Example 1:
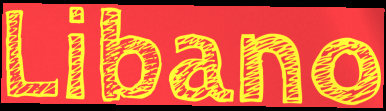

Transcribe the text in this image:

Libano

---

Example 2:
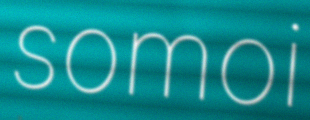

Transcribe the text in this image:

somoi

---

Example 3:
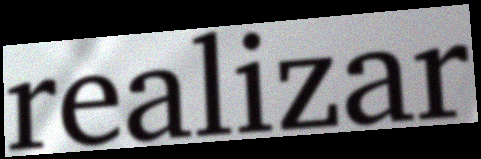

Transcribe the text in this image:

realizar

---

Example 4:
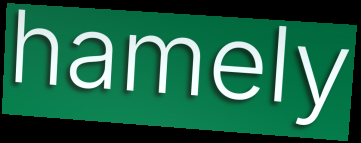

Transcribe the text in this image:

hamely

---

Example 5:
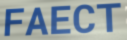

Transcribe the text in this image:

FAECT